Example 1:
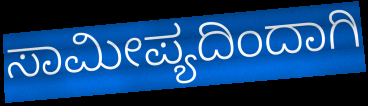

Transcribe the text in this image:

ಸಾಮೀಪ್ಯದಿಂದಾಗಿ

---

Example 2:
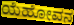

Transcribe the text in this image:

ಯೆಹೋವನ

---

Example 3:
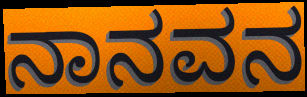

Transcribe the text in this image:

ನಾನವನ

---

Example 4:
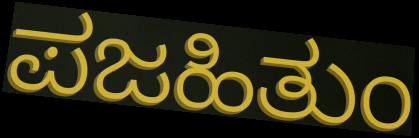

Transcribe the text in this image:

ಪಜಹಿತುಂ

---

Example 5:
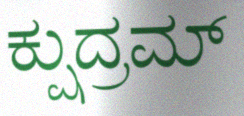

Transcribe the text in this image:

ಕ್ಷುದ್ರಮ್